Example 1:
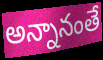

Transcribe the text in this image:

అన్నానంతే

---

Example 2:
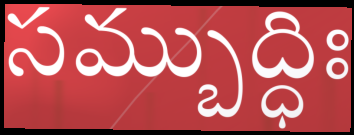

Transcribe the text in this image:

సమ్బుద్ధిః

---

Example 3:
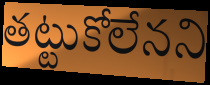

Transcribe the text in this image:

తట్టుకోలేనని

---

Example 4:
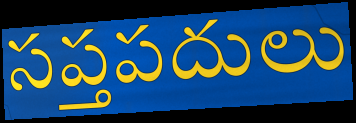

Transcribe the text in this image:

సప్తపదులు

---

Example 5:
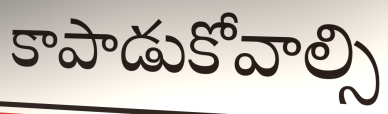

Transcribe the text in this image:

కాపాడుకోవాల్సి